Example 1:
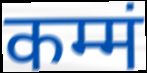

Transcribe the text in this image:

कम्मं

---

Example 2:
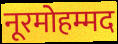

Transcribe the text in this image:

नूरमोहम्मद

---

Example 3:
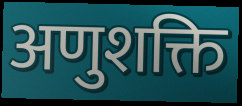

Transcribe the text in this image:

अणुशक्ति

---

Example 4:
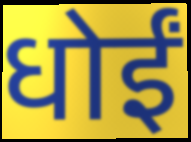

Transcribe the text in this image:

धोईं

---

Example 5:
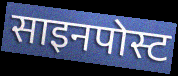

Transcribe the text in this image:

साइनपोस्ट